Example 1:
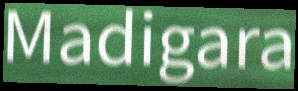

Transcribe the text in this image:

Madigara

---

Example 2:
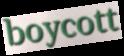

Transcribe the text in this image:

boycott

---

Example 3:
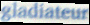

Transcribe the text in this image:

gladiateur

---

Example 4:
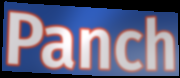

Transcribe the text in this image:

Panch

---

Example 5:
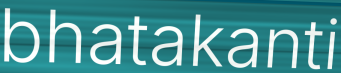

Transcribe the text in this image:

bhatakanti